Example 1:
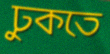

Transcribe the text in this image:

ঢুকতে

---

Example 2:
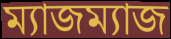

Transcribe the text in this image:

ম্যাজম্যাজ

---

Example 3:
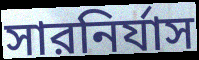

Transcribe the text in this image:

সারনির্যাস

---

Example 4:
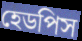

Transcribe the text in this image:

হেডপিস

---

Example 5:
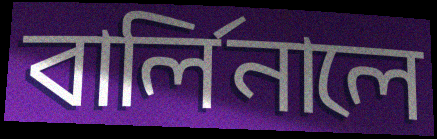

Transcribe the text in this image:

বার্লিনালে